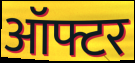
ऑफ्टर